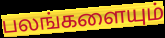
பலங்களையும்